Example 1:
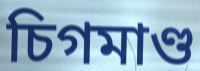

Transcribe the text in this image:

চিগমাণ্ড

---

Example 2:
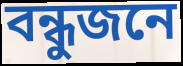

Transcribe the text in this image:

বন্ধুজনে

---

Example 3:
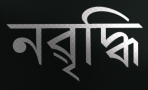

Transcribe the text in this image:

নৱৃদ্ধি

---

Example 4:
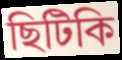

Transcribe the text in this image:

ছিটিকি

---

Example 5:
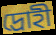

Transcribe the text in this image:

দ্ৰোহী